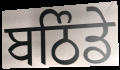
ਬਠਿੰਡੇ